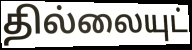
தில்லையுட்